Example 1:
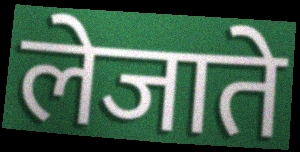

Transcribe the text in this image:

लेजाते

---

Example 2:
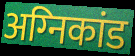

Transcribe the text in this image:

अग्‍निकांड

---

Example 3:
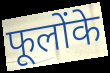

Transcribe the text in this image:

फूलोंके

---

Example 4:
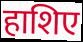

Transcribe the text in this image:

हाशिए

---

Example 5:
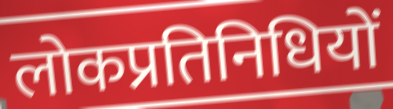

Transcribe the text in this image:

लोकप्रतिनिधियों